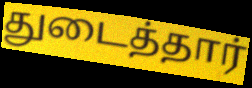
துடைத்தார்